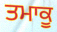
ਤਮਾਕੂ